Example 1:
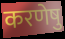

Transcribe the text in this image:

करणेषु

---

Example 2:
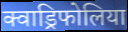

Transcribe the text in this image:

क्वाड्रिफोलिया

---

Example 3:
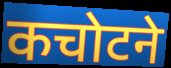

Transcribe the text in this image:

कचोटने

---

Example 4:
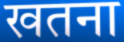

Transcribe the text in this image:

खतना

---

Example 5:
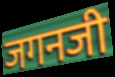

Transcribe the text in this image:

जगनजी